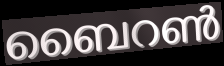
ബൈറൺ